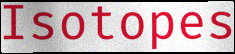
Isotopes